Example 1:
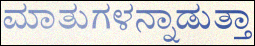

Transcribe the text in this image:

ಮಾತುಗಳನ್ನಾಡುತ್ತಾ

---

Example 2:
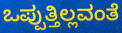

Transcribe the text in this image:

ಒಪ್ಪುತ್ತಿಲ್ಲವಂತೆ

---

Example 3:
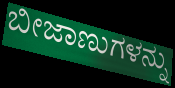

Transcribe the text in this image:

ಬೀಜಾಣುಗಳನ್ನು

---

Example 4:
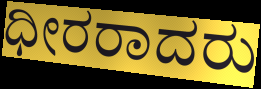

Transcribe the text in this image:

ಧೀರರಾದರು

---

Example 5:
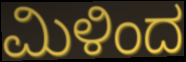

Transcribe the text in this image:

ಮಿಳಿಂದ